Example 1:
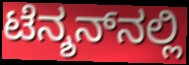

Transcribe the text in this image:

ಟೆನ್ಶನ್‌ನಲ್ಲಿ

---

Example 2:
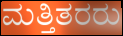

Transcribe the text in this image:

ಮತ್ತಿತರರು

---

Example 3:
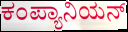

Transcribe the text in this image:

ಕಂಪ್ಯಾನಿಯನ್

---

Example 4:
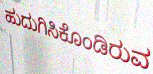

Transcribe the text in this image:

ಹುದುಗಿಸಿಕೊಂಡಿರುವ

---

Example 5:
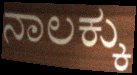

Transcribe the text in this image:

ನಾಲಕ್ಕು